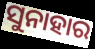
ସୁନାହାର